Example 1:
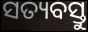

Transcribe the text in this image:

ସତ୍ୟବସ୍ତୁ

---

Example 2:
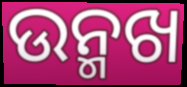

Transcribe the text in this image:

ଉନ୍ମଖ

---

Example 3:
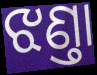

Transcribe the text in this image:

ଝଣ୍ତା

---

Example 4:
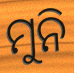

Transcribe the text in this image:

ମୁନି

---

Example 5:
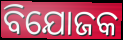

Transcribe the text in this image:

ବିଯୋଜକ